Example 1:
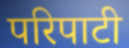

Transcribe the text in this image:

परिपाटी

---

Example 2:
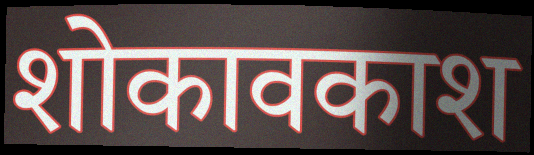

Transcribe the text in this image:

शोकावकाश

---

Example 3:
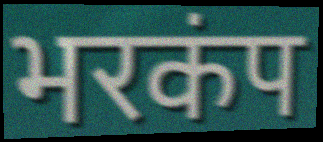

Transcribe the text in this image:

भरकंप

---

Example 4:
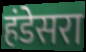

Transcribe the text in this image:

हंडेसरा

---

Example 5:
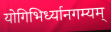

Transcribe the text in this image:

योगिभिर्ध्यानगम्यम्